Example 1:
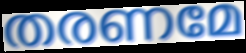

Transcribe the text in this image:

തരണമേ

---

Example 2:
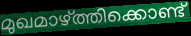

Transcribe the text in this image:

മുഖമാഴ്ത്തിക്കൊണ്ട്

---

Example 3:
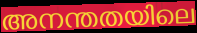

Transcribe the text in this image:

അനന്തതയിലെ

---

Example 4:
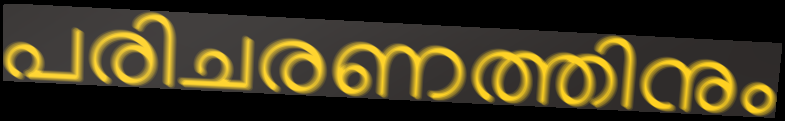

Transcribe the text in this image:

പരിചരണത്തിനും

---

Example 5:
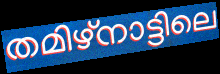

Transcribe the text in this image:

തമിഴ്നാട്ടിലെ